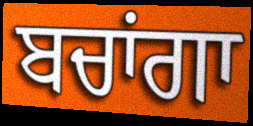
ਬਚਾਂਗਾ